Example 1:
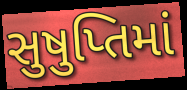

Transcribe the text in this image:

સુષુપ્તિમાં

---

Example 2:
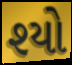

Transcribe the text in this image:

શ્યો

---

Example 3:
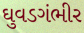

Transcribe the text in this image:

ઘુવડગંભીર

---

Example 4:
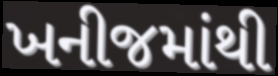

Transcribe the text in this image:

ખનીજમાંથી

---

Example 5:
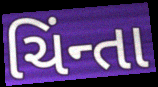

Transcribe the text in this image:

ચિંન્તા